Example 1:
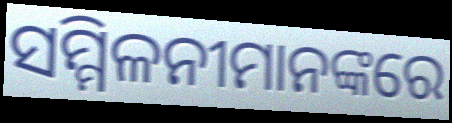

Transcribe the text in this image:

ସମ୍ମିଳନୀମାନଙ୍କରେ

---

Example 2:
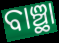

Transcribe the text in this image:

ବାଞ୍ଛା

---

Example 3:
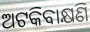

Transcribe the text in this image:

ଅଟକିବାକ୍ଷଣି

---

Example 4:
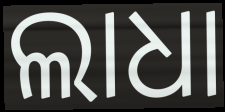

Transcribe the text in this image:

ଲାଧା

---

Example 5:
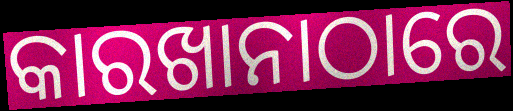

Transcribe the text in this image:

କାରଖାନାଠାରେ